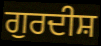
ਗੁਰਦੀਸ਼